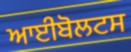
ਆਈਬੋਲਟਸ